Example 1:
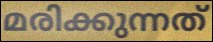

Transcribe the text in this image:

മരിക്കുന്നത്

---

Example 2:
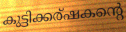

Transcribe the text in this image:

കുട്ടിക്കര്ഷകന്റെ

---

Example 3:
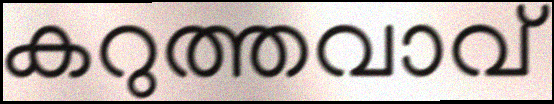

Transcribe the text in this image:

കറുത്തവാവ്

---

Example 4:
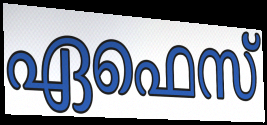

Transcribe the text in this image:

ഏഫെസ്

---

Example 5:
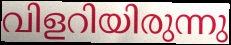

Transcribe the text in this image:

വിളറിയിരുന്നു